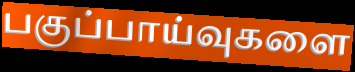
பகுப்பாய்வுகளை